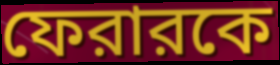
ফেরারকে